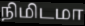
நிமிடமா